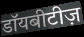
डॉयबीटीज़